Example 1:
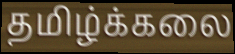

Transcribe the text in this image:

தமிழ்க்கலை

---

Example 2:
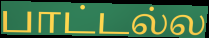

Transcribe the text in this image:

பாட்டல்ல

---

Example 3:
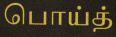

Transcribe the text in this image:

பொய்த்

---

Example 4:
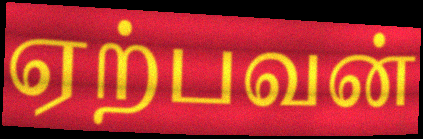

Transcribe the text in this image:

ஏற்பவன்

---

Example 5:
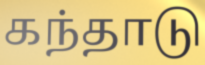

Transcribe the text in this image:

கந்தாடு